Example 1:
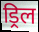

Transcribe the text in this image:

ड्रिल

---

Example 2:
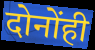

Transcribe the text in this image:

दोनोंही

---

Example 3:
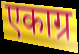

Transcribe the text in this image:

एकाग्र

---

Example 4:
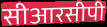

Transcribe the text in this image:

सीआरसीपी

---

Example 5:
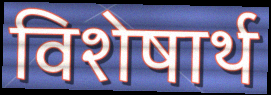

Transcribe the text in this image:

विशेषार्थ